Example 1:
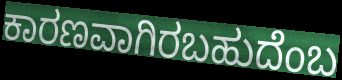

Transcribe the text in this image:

ಕಾರಣವಾಗಿರಬಹುದೆಂಬ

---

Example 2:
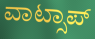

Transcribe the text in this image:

ವಾಟ್ಸಾಪ್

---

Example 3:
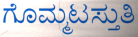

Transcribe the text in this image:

ಗೊಮ್ಮಟಸ್ತುತಿ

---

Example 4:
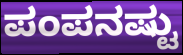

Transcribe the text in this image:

ಪಂಪನಷ್ಟು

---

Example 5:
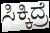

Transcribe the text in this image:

ಸಿಕ್ಕಿದ್ರೆ